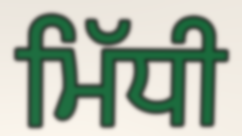
ਮਿੱਧੀ